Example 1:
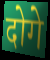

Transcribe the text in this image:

दोगे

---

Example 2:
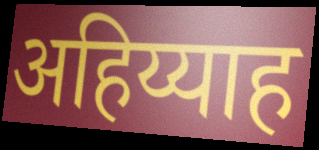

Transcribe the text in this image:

अहिय्याह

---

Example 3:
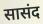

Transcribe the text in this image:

सासंद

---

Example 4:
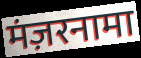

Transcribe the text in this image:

मंज़रनामा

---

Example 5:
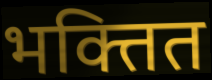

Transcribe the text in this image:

भक्तित